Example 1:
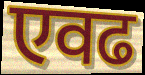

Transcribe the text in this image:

एवढ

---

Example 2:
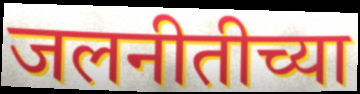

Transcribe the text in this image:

जलनीतीच्या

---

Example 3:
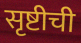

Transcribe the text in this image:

सृष्टीची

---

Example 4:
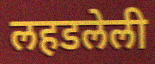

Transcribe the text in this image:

लहडलेली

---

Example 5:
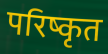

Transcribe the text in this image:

परिष्कृत